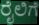
ರೈಲಿಗೆ